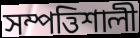
সম্পত্তিশালী